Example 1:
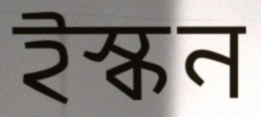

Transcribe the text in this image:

ইস্কন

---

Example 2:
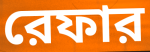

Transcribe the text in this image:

রেফার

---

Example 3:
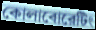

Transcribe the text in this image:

কোলাবোরেটিং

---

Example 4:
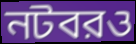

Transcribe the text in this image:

নটবরও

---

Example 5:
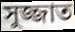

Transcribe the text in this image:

সুজ্জাত